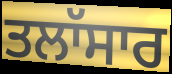
ਤਲਾੱਸਾਰ